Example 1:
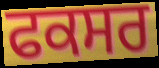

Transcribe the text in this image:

ਫਕਸਰ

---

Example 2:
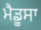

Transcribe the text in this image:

ਮੈਡੂਸਾ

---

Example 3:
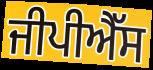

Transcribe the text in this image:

ਜੀਪੀਐੱਸ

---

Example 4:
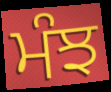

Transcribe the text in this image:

ਮੰਝ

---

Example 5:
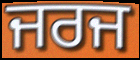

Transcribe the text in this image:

ਜਰਜ